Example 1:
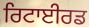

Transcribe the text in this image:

ਰਿਟਾਈਰਡ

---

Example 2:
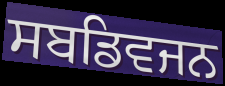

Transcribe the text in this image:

ਸਬਡਿਵਜਨ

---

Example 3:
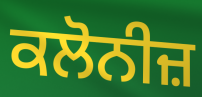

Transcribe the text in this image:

ਕਲੋਨੀਜ਼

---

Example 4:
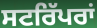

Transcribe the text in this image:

ਸਟਰਿੱਪਰਾਂ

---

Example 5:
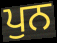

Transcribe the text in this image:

ਪੁਨ